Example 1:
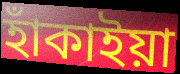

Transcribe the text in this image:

হাঁকাইয়া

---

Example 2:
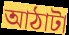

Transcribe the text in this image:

আঠাটা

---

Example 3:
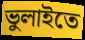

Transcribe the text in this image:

ভুলাইতে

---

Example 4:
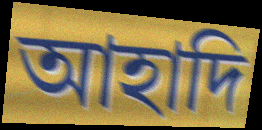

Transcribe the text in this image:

আহাদি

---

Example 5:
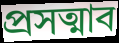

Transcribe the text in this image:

প্রসত্মাব